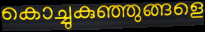
കൊച്ചുകുഞ്ഞുങ്ങളെ